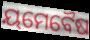
ୟମେବୈଷ